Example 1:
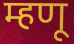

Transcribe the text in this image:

म्हणू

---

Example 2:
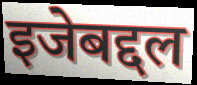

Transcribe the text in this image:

इजेबद्दल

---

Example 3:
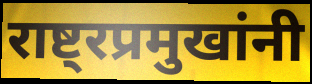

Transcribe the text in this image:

राष्ट्रप्रमुखांनी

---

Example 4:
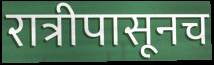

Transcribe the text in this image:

रात्रीपासूनच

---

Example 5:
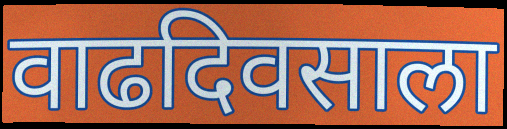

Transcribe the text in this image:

वाढदिवसाला